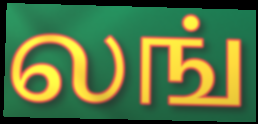
லங்